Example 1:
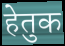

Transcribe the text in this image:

हेतुक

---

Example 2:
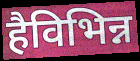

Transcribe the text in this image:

हैविभिन्न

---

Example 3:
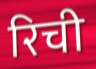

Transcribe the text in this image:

रिची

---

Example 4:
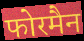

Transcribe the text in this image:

फोरमैन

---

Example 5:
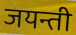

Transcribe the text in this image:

जयन्ती